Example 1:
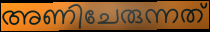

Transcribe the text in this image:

അണിചേരുന്നത്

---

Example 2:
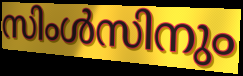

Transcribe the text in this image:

സിംൾസിനും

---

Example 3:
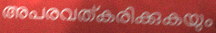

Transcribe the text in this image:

അപരവത്കരിക്കുകയും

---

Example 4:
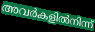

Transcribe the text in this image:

അവർകളിൽനിന്ന്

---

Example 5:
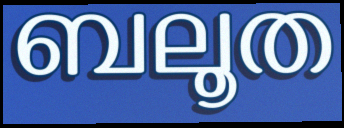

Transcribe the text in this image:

ബലൂത